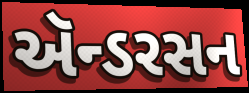
ઍન્ડરસન